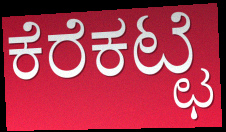
ಕೆರೆಕಟ್ಟೆ